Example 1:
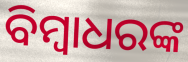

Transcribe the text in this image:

ବିମ୍ବାଧରଙ୍କ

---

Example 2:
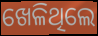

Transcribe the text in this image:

ଖେଳିଥିଲେ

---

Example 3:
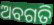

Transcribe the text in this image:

ଅବଗତି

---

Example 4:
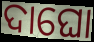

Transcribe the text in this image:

ଦାଘୋ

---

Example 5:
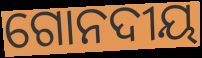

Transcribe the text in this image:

ଗୋନଦୀୟ